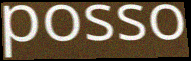
posso